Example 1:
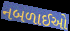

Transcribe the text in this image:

નબળાઈઓ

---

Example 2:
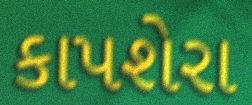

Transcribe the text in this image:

કાપશેરા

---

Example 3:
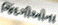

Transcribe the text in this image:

જિંદગીઓના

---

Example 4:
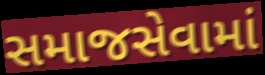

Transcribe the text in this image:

સમાજસેવામાં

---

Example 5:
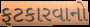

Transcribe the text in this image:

ફટકારવાનો